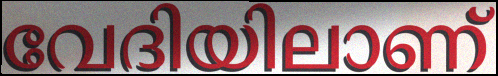
വേദിയിലാണ്